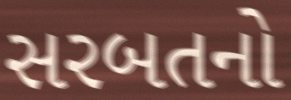
સરબતનો